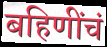
बहिणींचं